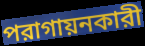
পরাগায়নকারী